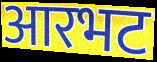
आरभट